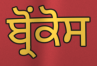
ਬ੍ਰੋਂਕੋਸ